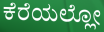
ಕೆರೆಯಲ್ಲೋ